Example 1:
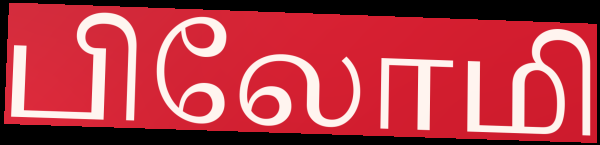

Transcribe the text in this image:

பிலோமி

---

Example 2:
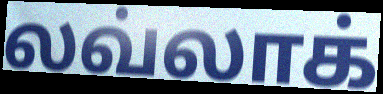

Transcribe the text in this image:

லவ்லாக்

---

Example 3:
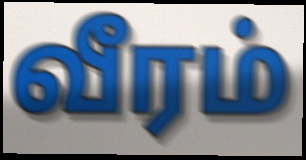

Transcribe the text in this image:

வீரம்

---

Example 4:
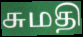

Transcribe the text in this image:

சுமதி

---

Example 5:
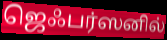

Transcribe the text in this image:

ஜெஃபர்ஸனில்